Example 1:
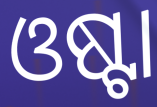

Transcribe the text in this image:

ଓଷ୍ଟା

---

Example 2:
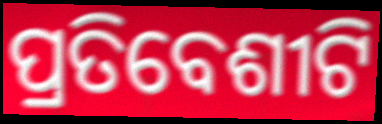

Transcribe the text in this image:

ପ୍ରତିବେଶୀଟି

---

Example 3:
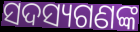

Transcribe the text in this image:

ସଦସ୍ୟଗଣଙ୍କ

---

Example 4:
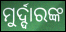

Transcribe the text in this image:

ମୁର୍ଦ୍ଦାରଙ୍କ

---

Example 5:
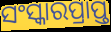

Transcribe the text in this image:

ସଂସ୍କାରପ୍ରାପ୍ତ